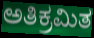
ಅತಿಕ್ರಮಿತ